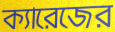
ক্যারেজের